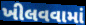
ખીલવવામાં